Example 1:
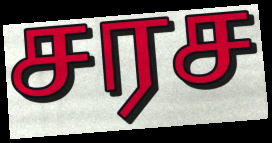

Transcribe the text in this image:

சரச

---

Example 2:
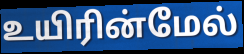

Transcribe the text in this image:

உயிரின்மேல்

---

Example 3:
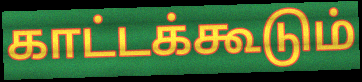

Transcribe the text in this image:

காட்டக்கூடும்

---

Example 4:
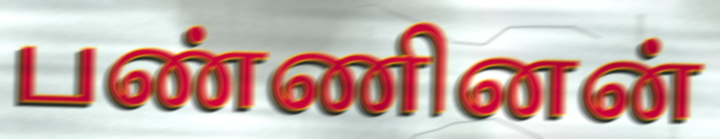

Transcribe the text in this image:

பண்ணினன்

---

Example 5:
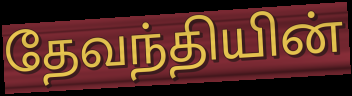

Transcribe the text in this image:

தேவந்தியின்